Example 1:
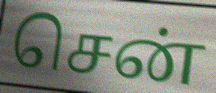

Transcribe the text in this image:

சென்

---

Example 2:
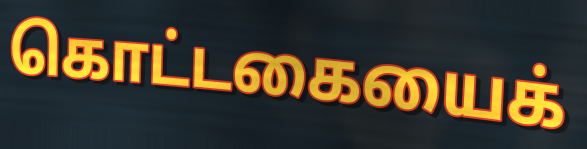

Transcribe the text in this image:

கொட்டகையைக்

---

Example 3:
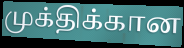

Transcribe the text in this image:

முக்திக்கான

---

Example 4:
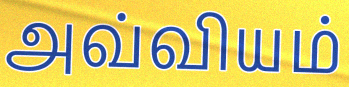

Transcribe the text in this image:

அவ்வியம்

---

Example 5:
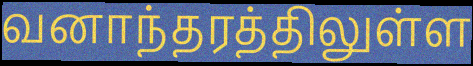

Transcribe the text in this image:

வனாந்தரத்திலுள்ள